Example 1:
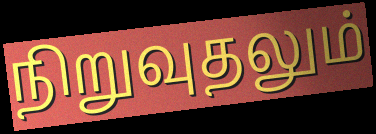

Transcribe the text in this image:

நிறுவுதலும்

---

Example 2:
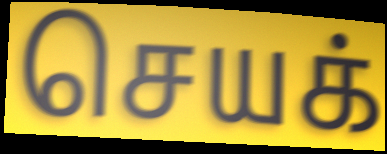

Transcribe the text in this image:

செயக்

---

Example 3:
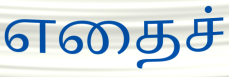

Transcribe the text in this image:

எதைச்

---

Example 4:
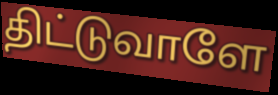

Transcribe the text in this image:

திட்டுவாளே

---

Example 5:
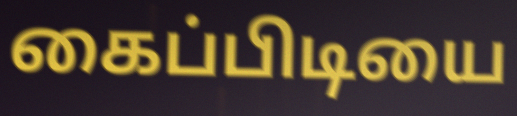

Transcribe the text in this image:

கைப்பிடியை